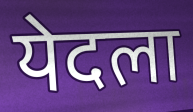
येदला